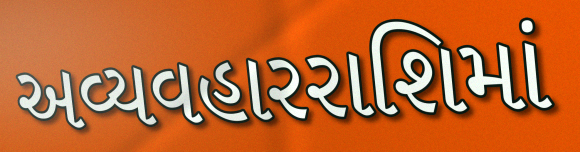
અવ્યવહારરાશિમાં